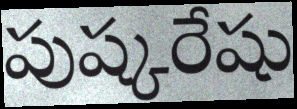
పుష్కరేషు